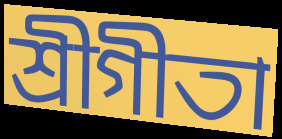
শ্রীগীতা